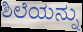
ಶಿಲೆಯನ್ನು